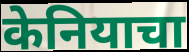
केनियाचा